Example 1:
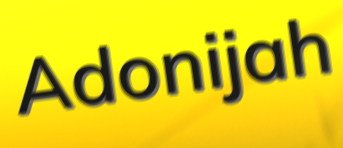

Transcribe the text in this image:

Adonijah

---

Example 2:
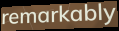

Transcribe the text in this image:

remarkably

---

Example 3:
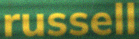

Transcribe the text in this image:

russell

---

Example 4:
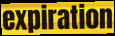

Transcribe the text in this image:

expiration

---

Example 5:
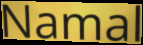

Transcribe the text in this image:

Namal